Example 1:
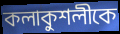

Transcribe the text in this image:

কলাকুশলীকে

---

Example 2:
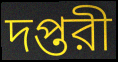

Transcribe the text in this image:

দপ্তরী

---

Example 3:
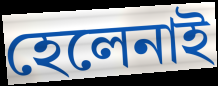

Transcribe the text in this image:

হেলেনাই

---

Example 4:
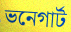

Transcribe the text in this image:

ভনেগার্ট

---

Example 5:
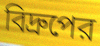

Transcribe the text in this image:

বিদ্রুপের